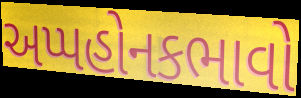
અપ્પહોનકભાવો